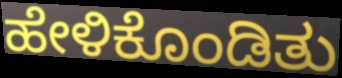
ಹೇಳಿಕೊಂಡಿತು